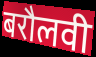
बरौलवी